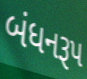
બંધનરૂપ